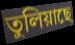
তুলিয়াছে